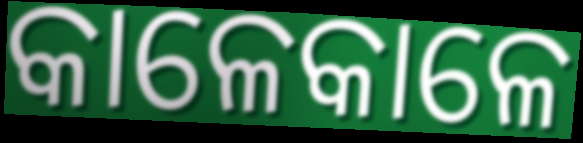
କାଳେକାଳେ